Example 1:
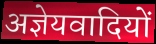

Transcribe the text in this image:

अज्ञेयवादियों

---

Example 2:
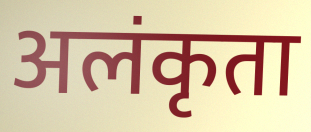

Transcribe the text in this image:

अलंकृता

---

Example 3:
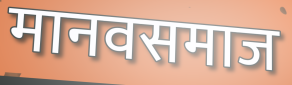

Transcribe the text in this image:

मानवसमाज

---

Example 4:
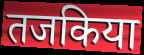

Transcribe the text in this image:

तजकिया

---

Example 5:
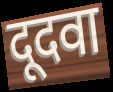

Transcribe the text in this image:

दूदवा